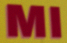
MI